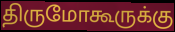
திருமோகூருக்கு